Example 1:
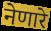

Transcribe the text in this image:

नेणारे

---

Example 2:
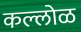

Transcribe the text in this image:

कल्लोळ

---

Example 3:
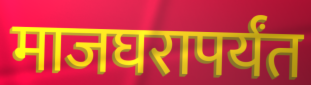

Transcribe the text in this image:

माजघरापर्यंत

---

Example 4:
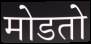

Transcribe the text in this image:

मोडतो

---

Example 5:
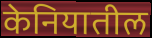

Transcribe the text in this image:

केनियातील